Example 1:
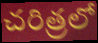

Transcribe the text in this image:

చరిత్రలో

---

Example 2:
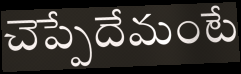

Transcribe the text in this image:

చెప్పేదేమంటే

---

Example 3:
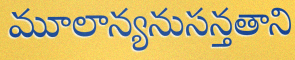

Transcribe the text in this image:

మూలాన్యనుసన్తతాని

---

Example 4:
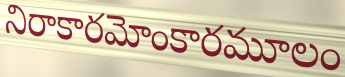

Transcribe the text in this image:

నిరాకారమోంకారమూలం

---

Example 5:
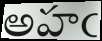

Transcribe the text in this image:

అహఁ